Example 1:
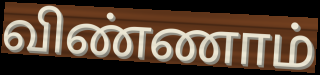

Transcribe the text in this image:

விண்ணாம்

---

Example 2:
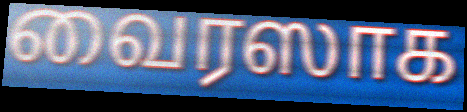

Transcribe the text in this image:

வைரஸாக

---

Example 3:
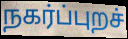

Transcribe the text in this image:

நகர்ப்புறச்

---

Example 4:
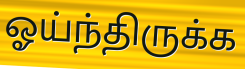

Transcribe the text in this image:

ஓய்ந்திருக்க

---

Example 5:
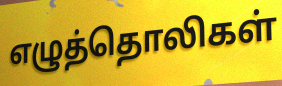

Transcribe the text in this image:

எழுத்தொலிகள்